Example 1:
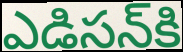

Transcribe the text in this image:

ఎడిసన్‌కి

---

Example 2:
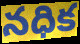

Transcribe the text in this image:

నధిక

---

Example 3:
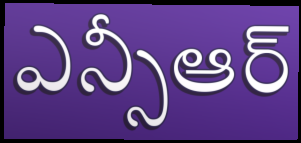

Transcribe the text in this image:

ఎన్సీఆర్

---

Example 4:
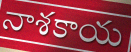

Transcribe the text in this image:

నాశకాయ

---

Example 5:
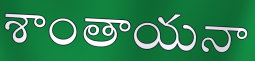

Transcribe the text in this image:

శాంతాయనా